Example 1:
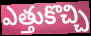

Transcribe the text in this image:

ఎత్తుకొచ్చి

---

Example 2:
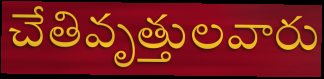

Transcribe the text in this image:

చేతివృత్తులవారు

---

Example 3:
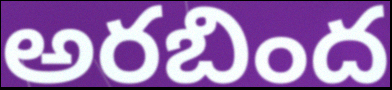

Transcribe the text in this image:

అరబింద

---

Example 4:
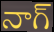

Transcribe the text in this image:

నాగ్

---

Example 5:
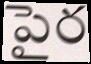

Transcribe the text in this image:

పైర